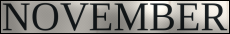
NOVEMBER